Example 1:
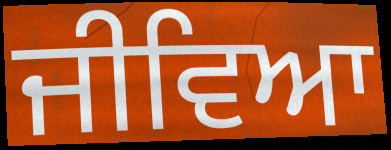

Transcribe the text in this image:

ਜੀਵਿਆ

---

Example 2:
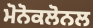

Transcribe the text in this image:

ਮੋਨੋਕਲੋਨਲ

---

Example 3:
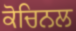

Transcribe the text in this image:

ਕੋਚਿਨਲ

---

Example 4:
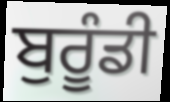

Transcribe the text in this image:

ਬੁਰੂੰਡੀ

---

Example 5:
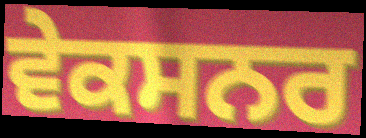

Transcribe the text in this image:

ਵੇਕਸਨਰ